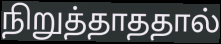
நிறுத்தாததால்